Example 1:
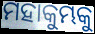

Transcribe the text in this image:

ମହାକୁମ୍ଭକୁ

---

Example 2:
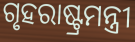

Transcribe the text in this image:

ଗୃହରାଷ୍ଟ୍ରମନ୍ତ୍ରୀ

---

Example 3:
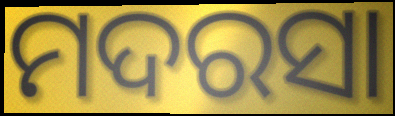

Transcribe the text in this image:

ମଦରସା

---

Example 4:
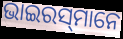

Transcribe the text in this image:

ଭାଇରସ୍‌ମାନେ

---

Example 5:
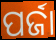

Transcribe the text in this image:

ପର୍ଜା